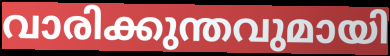
വാരിക്കുന്തവുമായി